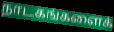
நாடகங்களைக்